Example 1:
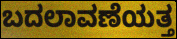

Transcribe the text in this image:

ಬದಲಾವಣೆಯತ್ತ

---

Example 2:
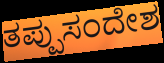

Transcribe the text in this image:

ತಪ್ಪುಸಂದೇಶ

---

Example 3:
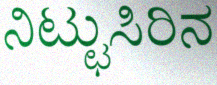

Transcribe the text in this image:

ನಿಟ್ಟುಸಿರಿನ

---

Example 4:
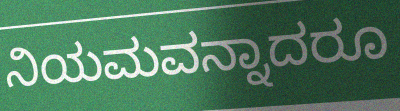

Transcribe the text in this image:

ನಿಯಮವನ್ನಾದರೂ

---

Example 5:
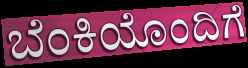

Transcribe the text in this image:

ಬೆಂಕಿಯೊಂದಿಗೆ